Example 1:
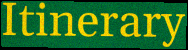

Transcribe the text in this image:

Itinerary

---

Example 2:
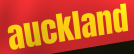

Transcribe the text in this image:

auckland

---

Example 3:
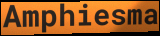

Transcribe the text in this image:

Amphiesma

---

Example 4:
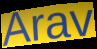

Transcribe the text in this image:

Arav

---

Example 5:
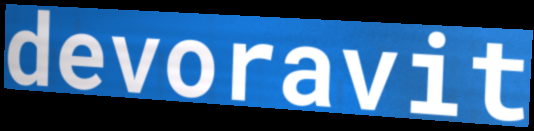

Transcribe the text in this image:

devoravit